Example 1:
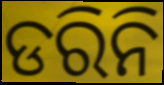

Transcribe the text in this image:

ଡରିନି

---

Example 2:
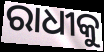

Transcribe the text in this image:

ରାଧୀକୁ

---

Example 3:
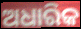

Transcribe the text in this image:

ଅଧାରିକ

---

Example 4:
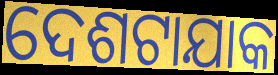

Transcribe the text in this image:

ଦେଶଟାଯାକ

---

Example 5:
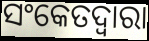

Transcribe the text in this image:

ସଂକେତଦ୍ଵାରା